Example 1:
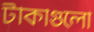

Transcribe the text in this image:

টাকাগুলো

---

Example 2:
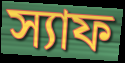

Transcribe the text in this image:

স্যাফ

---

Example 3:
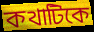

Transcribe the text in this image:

কথাটিকে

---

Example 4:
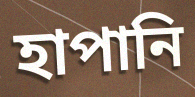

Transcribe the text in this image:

হাপানি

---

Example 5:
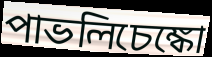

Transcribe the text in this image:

পাভলিচেঙ্কো